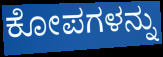
ಕೋಪಗಳನ್ನು